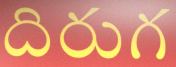
దిరుగ